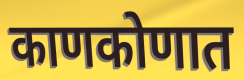
काणकोणात